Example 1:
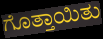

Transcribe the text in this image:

ಗೊತ್ತಾಯಿತು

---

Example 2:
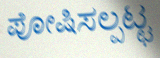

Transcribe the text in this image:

ಪೋಷಿಸಲ್ಪಟ್ಟ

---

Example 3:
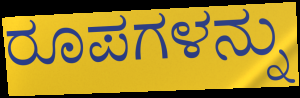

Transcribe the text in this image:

ರೂಪಗಳನ್ನು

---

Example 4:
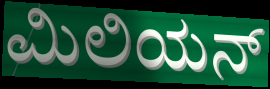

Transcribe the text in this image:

ಮಿಲಿಯನ್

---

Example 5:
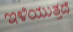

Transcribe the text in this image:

ಇಳಿಯುತ್ತದೆ